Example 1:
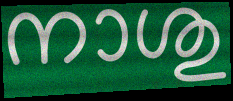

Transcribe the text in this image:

നാശു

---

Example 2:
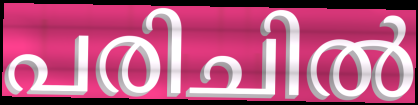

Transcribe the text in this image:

പരിചിൽ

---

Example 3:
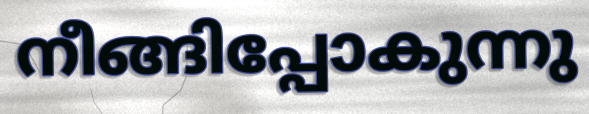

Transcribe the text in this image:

നീങ്ങിപ്പോകുന്നു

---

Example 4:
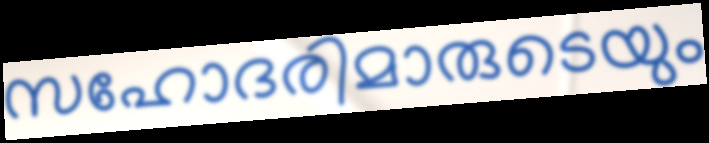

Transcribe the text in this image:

സഹോദരിമാരുടെയും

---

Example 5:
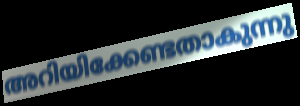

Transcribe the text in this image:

അറിയിക്കേണ്ടതാകുന്നു